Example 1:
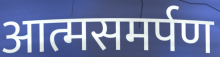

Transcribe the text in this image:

आत्मसमर्पण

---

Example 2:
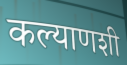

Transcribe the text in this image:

कल्याणशी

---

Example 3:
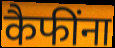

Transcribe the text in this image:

कैफींना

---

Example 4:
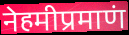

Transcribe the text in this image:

नेहमीप्रमाणं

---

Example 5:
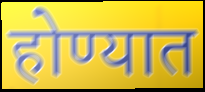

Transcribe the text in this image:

होण्यात